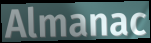
Almanac